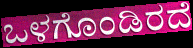
ಒಳಗೊಂಡಿರದೆ